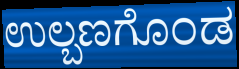
ಉಲ್ಬಣಗೊಂಡ